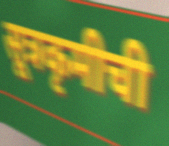
सूत्रकृमीची